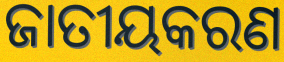
ଜାତୀୟକରଣ